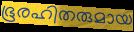
ഭൂരഹിതരുമായ